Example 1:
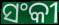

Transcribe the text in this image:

ସଂକୀ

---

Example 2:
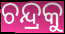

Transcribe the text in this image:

ଚନ୍ଦ୍ରକୁ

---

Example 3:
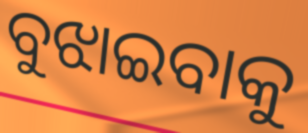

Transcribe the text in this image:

ବୁଝାଇବାକୁ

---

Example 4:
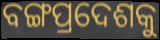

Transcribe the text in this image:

ବଙ୍ଗପ୍ରଦେଶକୁ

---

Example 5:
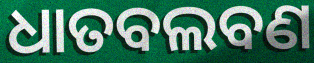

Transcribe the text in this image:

ଧାତବଲବଣ